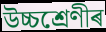
উচ্চশ্ৰেণীৰ